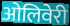
ओलिवेरी